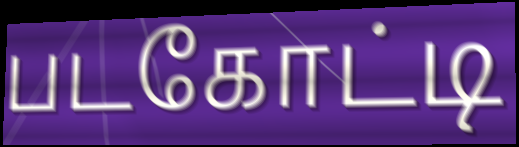
படகோட்டி